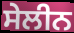
ਸੇਲੀਨ